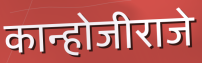
कान्होजीराजे